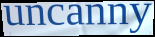
uncanny